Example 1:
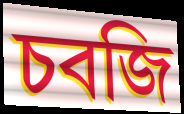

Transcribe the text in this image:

চবজি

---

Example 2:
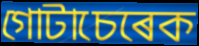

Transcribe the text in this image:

গোটাচেৰেক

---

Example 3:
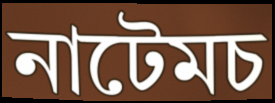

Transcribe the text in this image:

নাটেমচ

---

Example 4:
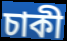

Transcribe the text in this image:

চাকী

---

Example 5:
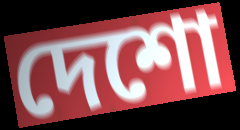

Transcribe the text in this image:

দেশো